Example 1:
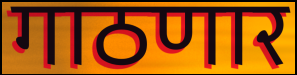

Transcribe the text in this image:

गाठणार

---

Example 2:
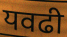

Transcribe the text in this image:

यवढी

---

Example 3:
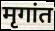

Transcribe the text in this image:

मृगांत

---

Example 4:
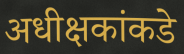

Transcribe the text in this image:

अधीक्षकांकडे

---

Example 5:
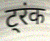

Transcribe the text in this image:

ट्रंक